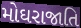
મોઘરાજાતિ